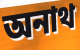
অনাথ